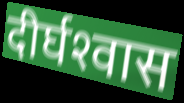
दीर्घश्वास